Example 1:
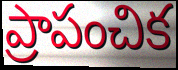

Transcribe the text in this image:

ప్రాపంచిక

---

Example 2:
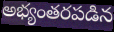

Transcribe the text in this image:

అభ్యంతరపడిన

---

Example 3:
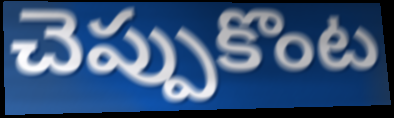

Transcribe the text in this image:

చెప్పుకొంట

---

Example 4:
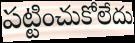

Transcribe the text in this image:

పట్టించుకోలేదు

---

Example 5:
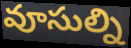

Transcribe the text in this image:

వూసుల్ని